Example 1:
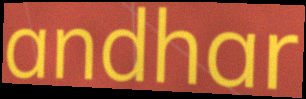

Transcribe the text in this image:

andhar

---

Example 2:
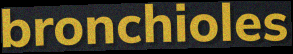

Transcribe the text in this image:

bronchioles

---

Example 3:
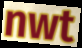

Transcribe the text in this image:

nwt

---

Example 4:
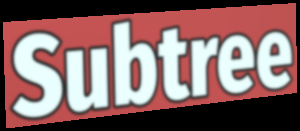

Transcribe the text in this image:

Subtree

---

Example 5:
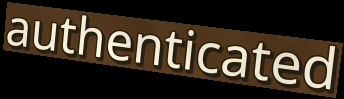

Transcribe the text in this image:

authenticated